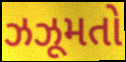
ઝઝૂમતો